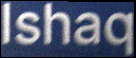
Ishaq